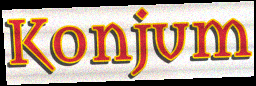
Konjum